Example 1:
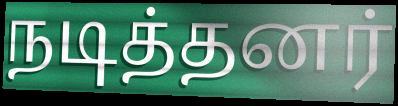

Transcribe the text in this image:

நடித்தனர்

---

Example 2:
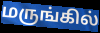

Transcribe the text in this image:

மருங்கில்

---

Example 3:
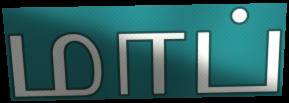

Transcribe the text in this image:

மாப்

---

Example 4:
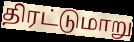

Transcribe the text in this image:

திரட்டுமாறு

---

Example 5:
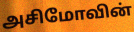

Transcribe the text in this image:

அசிமோவின்